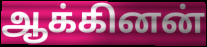
ஆக்கினன்